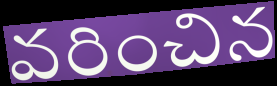
వరించిన